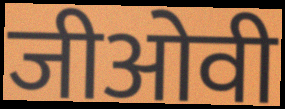
जीओवी